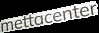
mettacenter